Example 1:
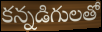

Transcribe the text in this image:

కన్నడిగులతో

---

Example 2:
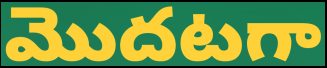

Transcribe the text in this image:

మొదటగా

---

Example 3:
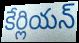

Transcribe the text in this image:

కేర్లియన్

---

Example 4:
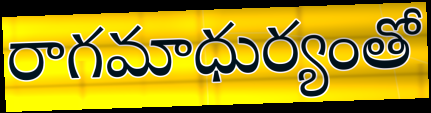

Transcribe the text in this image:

రాగమాధుర్యంతో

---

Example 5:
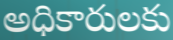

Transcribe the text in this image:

అధికారులకు